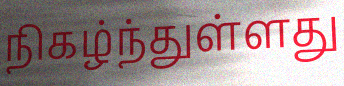
நிகழ்ந்துள்ளது